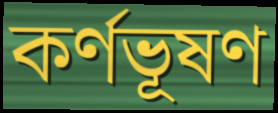
কর্ণভূষণ